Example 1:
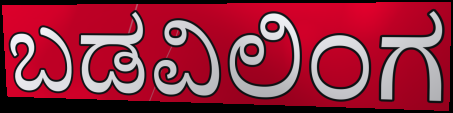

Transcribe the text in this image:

ಬಡವಿಲಿಂಗ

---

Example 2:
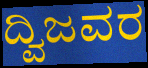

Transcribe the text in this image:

ದ್ವಿಜವರ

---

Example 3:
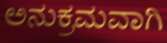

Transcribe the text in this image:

ಅನುಕ್ರಮವಾಗಿ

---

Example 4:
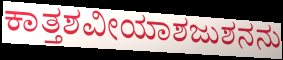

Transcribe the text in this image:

ಕಾತ್ತಶವೀಯಾಶಜುಶನನು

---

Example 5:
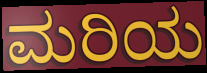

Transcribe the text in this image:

ಮರಿಯ